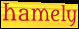
hamely